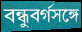
বন্ধুবর্গসঙ্গে